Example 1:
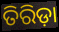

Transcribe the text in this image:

ତିରିଡ଼ା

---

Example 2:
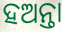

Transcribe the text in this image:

ହଅନ୍ତା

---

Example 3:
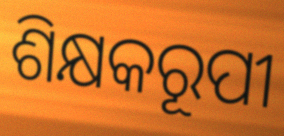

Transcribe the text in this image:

ଶିକ୍ଷକରୂପୀ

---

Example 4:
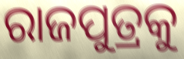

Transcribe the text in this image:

ରାଜପୁତ୍ରକୁ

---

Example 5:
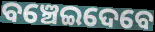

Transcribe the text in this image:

ବଞ୍ଚେଇଦେବେ